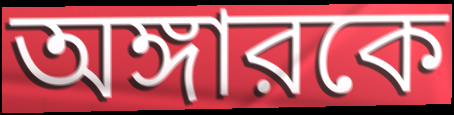
অঙ্গারকে